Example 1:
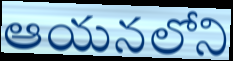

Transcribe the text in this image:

ఆయనలోని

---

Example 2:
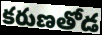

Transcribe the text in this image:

కరుణతోడ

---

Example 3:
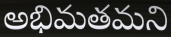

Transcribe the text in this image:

అభిమతమని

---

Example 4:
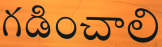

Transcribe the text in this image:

గడించాలి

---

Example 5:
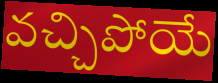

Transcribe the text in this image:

వచ్చిపోయే